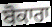
ਬੋਕਾਰਾ